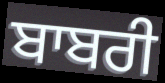
ਬਾਬਰੀ